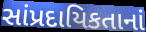
સાંપ્રદાયિકતાનાં